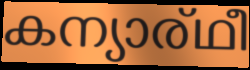
കന്യാര്ഥീ